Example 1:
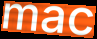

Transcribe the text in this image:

mac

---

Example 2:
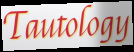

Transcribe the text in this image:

Tautology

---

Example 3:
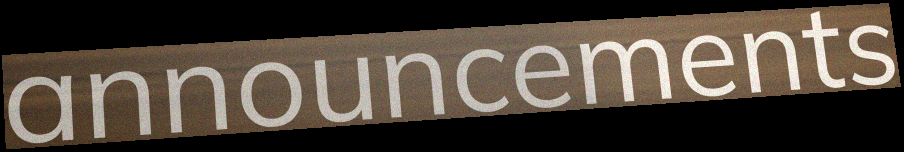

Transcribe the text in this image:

announcements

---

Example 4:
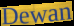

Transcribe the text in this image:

Dewan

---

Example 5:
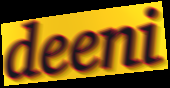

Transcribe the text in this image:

deeni